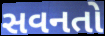
સવનતો